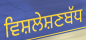
ਵਿਸ਼ਲੇਸ਼ਣਬੱਧ